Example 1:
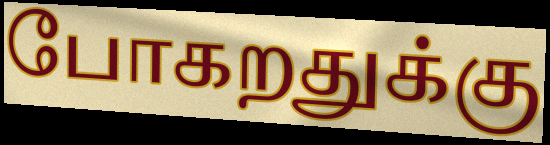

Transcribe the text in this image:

போகறதுக்கு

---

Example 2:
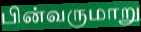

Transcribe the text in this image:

பின்வருமாறு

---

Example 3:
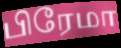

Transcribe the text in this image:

பிரேமா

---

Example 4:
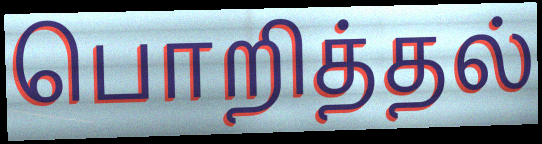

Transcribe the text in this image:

பொறித்தல்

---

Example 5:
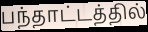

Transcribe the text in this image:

பந்தாட்டத்தில்